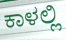
ಕಾಳಲ್ಲಿ